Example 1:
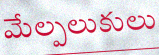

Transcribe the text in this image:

మేల్పలుకులు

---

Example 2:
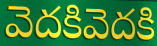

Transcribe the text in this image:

వెదకివెదకి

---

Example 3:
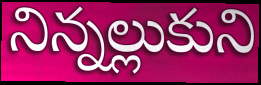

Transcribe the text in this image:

నిన్నల్లుకుని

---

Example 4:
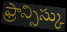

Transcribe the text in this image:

ఫ్రాన్సిస్కు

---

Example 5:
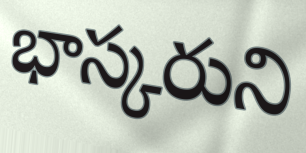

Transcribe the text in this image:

భాస్కరుని